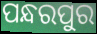
ପନ୍ଧରପୁର